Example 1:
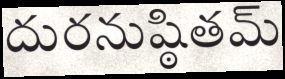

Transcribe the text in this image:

దురనుష్ఠితమ్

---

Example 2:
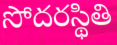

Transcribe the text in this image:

సోదరస్థితి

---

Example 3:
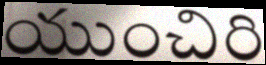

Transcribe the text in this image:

యుంచిరి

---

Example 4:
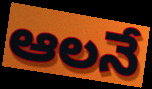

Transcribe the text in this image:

ఆలనే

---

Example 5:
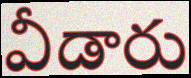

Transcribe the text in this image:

వీడారు